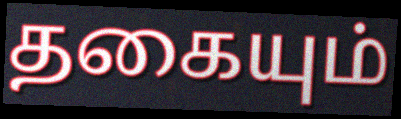
தகையும்